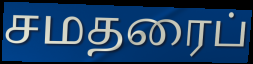
சமதரைப்